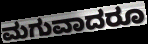
ಮಗುವಾದರೂ